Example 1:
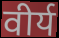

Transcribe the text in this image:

वीर्य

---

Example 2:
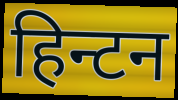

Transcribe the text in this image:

हिन्टन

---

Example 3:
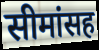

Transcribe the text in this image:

सीमांसह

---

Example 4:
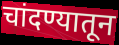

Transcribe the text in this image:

चांदण्यातून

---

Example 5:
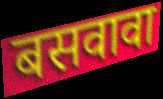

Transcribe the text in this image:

बसवावा